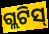
ଗ୍ଲଟିସ୍